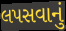
લપસવાનું